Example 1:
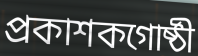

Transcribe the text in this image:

প্রকাশকগোষ্ঠী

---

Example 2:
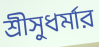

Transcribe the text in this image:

শ্রীসুধর্মার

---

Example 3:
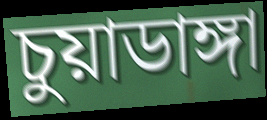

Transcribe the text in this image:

চুয়াডাঙ্গা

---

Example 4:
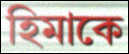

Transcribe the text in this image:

হিমাকে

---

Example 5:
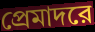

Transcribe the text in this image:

প্রেমাদরে